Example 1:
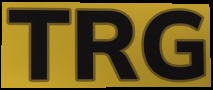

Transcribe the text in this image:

TRG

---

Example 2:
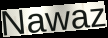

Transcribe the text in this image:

Nawaz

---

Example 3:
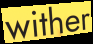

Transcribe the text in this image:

wither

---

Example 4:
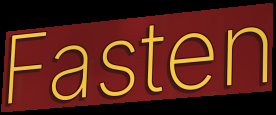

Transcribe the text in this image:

Fasten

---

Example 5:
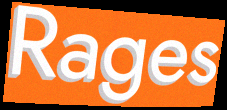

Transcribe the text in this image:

Rages